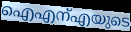
ഐഎന്എയുടെ